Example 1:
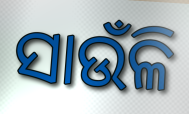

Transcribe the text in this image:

ସାଉଁଳି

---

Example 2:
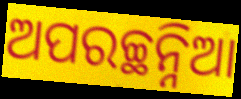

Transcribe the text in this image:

ଅପରଚ୍ଛନ୍ନିଆ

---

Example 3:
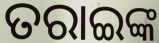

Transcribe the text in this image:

ତରାଇଙ୍କ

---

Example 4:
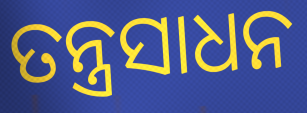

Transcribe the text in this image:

ତନ୍ତ୍ରସାଧନ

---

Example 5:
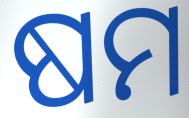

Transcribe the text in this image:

ଷମ